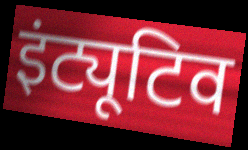
इंट्यूटिव